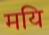
मयि